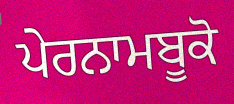
ਪੇਰਨਾਮਬੂਕੋ